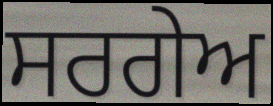
ਸਰਗੇਅ